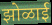
झोळाई